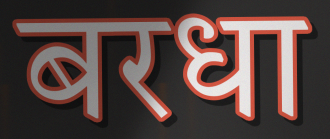
बरधा